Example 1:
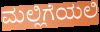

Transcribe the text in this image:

ಮಲ್ಲಿಗೆಯಲಿ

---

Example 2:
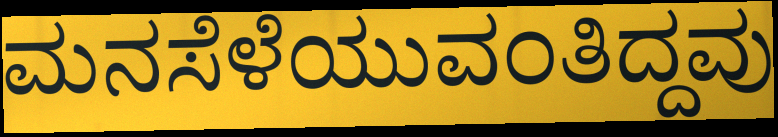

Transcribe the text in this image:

ಮನಸೆಳೆಯುವಂತಿದ್ದವು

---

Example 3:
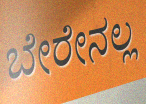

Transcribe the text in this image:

ಬೇರೇನಲ್ಲ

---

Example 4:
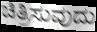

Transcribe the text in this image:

ಚಿತ್ರಿಸುವುದು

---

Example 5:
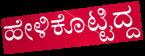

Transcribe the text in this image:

ಹೇಳಿಕೊಟ್ಟಿದ್ದ